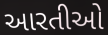
આરતીઓ